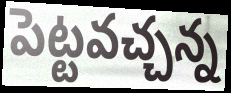
పెట్టవచ్చన్న